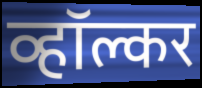
व्हॉल्कर